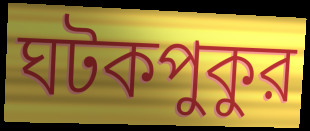
ঘটকপুকুর